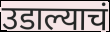
उडाल्याचं